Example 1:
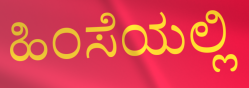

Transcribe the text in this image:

ಹಿಂಸೆಯಲ್ಲಿ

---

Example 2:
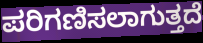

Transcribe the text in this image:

ಪರಿಗಣಿಸಲಾಗುತ್ತದೆ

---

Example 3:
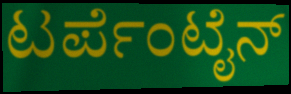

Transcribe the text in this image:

ಟರ್ಪೆಂಟೈನ್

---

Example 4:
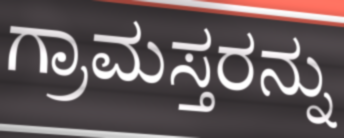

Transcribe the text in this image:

ಗ್ರಾಮಸ್ತರನ್ನು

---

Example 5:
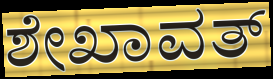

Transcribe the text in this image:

ಶೇಖಾವತ್